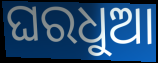
ଘରଧୁଆ